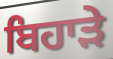
ਬਿਹਾੜੇ